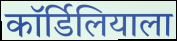
कॉर्डिलियाला